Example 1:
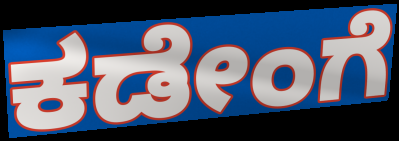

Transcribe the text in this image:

ಕಡೇಂಗೆ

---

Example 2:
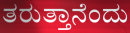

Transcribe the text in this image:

ತರುತ್ತಾನೆಂದು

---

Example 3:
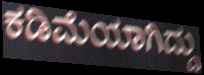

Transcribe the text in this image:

ಕಡಿಮೆಯಾಗಿದ್ದು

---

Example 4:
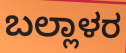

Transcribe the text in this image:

ಬಲ್ಲಾಳರ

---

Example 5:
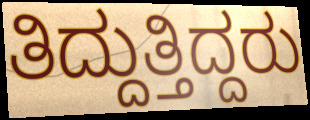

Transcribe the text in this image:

ತಿದ್ದುತ್ತಿದ್ದರು